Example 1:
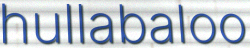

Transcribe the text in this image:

hullabaloo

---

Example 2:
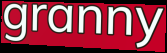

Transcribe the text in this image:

granny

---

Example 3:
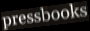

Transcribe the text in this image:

pressbooks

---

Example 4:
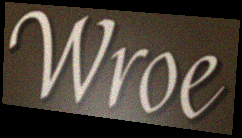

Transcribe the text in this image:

Wroe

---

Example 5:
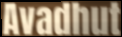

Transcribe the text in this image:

Avadhut